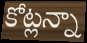
కోట్లన్నా